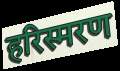
हरिस्मरण